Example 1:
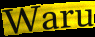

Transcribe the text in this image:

Waru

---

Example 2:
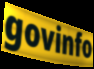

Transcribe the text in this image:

govinfo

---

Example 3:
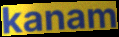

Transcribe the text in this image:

kanam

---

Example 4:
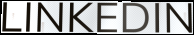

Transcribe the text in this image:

LINKEDIN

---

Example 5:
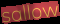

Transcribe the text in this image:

sallow